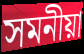
সমনীয়া